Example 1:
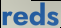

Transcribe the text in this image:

reds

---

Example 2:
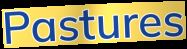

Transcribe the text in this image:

Pastures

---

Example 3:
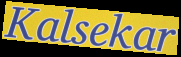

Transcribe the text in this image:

Kalsekar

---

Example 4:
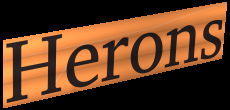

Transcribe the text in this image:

Herons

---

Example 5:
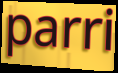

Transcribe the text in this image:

parri